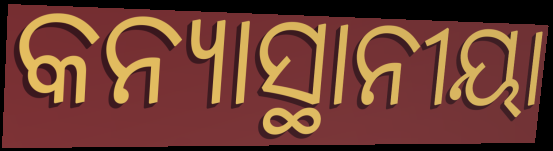
କନ୍ୟାସ୍ଥାନୀୟା